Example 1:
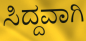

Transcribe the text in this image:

ಸಿದ್ದವಾಗಿ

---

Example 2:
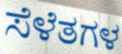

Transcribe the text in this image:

ಸೆಳೆತಗಳ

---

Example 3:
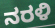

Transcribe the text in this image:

ನರಳಿ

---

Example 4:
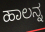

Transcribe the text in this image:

ಹಾಲನ್ನ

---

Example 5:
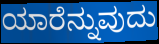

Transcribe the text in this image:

ಯಾರೆನ್ನುವುದು